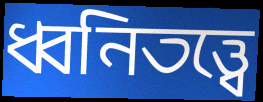
ধ্বনিতত্ত্বে